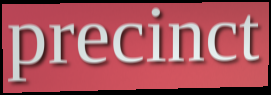
precinct